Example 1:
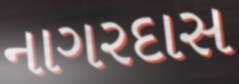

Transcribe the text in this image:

નાગરદાસ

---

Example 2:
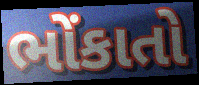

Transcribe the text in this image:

ભોંકાતો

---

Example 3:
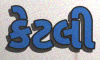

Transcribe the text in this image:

કેટલી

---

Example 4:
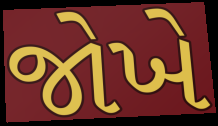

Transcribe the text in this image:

જોખે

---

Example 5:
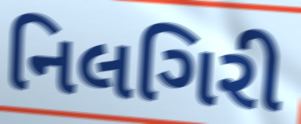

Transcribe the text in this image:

નિલગિરી